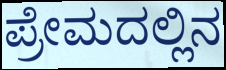
ಪ್ರೇಮದಲ್ಲಿನ